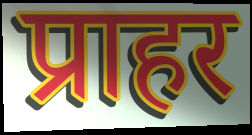
प्राहर